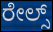
ರೇಲ್ಸ್